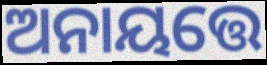
ଅନାୟତ୍ତେ